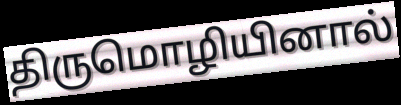
திருமொழியினால்